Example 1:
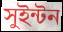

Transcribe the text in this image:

সুইন্টন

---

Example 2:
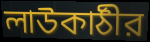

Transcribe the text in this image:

লাউকাঠীর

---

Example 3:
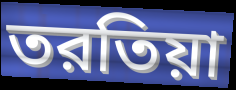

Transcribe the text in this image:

তরতিয়া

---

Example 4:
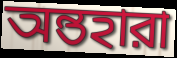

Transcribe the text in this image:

অন্তহারা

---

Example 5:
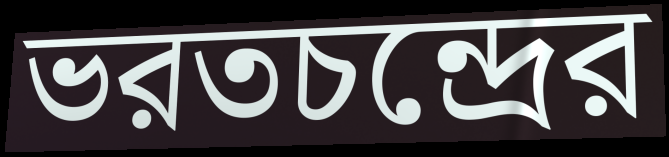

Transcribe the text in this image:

ভরতচন্দ্রের